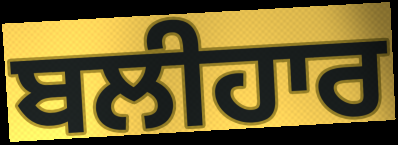
ਬਲੀਹਾਰ